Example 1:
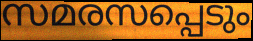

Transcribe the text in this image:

സമരസപ്പെടും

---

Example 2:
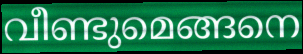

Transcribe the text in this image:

വീണ്ടുമെങ്ങനെ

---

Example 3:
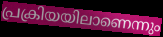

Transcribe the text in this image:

പ്രക്രിയയിലാണെന്നും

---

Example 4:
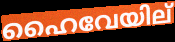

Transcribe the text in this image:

ഹൈവേയില്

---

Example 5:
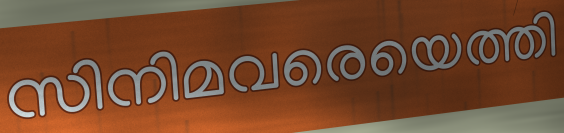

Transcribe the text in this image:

സിനിമവരെയെത്തി